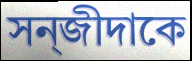
সন্জীদাকে